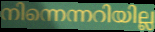
നിന്നെന്നറിയില്ല